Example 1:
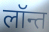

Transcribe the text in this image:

लॉन्त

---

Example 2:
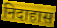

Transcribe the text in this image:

निदाहास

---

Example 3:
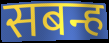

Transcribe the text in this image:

सबन्ह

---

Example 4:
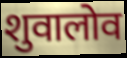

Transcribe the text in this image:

शुवालोव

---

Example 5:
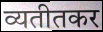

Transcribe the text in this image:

व्यतीतकर